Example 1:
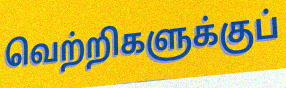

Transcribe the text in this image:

வெற்றிகளுக்குப்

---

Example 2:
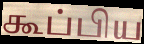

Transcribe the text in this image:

கூப்பிய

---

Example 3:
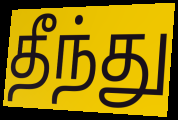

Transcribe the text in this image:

தீந்து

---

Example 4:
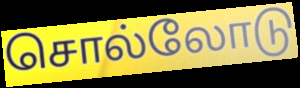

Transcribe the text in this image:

சொல்லோடு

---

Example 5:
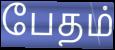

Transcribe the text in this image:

பேதம்